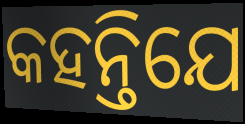
କହନ୍ତିଯେ